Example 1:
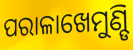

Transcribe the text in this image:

ପରାଳାଖେମୁଣ୍ଡି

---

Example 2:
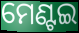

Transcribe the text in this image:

ମେଣ୍ଟଇ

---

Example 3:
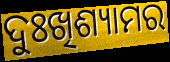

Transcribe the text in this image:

ଦୁଃଖିଶ୍ୟାମର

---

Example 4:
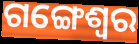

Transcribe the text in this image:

ଗଙ୍ଗେଶ୍ଵର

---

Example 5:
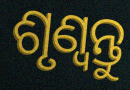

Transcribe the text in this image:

ଶୃଣ୍ଵନ୍ତୁ